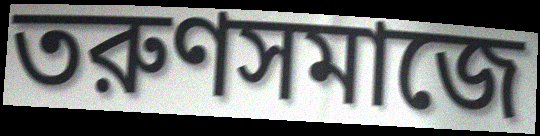
তরুণসমাজে